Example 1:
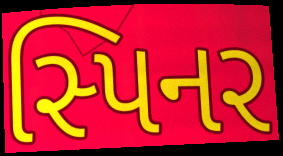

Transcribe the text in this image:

સ્પિનર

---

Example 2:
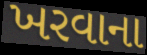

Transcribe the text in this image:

ખરવાના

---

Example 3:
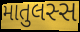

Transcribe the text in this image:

માતુલસ્સ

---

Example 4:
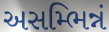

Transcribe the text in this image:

અસમ્ભિન્નં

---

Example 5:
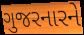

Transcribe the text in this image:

ગુજરનારને